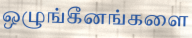
ஒழுங்கீனங்களை